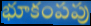
భూకంపపు